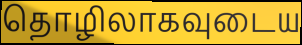
தொழிலாகவுடைய